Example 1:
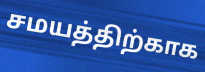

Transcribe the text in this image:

சமயத்திற்காக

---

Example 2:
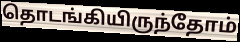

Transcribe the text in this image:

தொடங்கியிருந்தோம்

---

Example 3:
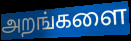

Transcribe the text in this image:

அறங்களை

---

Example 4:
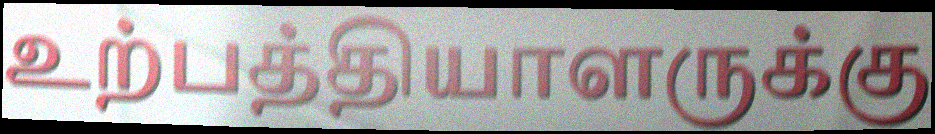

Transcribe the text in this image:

உற்பத்தியாளருக்கு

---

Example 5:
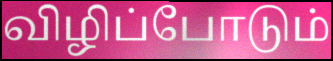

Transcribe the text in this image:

விழிப்போடும்